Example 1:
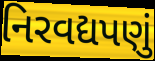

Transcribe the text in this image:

નિરવદ્યપણું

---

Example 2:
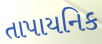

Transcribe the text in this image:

તાપાયનિક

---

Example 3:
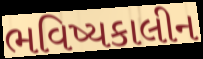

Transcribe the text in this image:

ભવિષ્યકાલીન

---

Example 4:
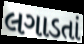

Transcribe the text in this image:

લગાડતાં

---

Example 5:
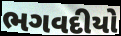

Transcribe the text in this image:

ભગવદીયો